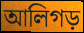
আলিগড়